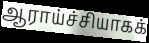
ஆராய்ச்சியாகக்